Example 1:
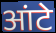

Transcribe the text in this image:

आंटे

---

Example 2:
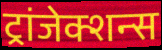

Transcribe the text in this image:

ट्रांजेक्शन्स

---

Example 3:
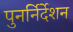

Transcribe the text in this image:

पुनर्निर्देशन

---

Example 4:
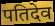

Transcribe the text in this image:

पतिदेव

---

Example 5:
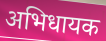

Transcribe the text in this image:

अभिधायक